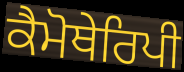
ਕੈਮੋਥੇਰਿਪੀ